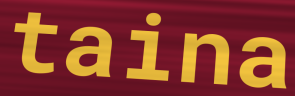
taina